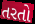
તરતો